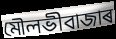
মৌলভীবাজাৰ